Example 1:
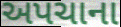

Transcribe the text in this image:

અપચાના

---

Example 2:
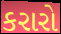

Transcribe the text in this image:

કરારો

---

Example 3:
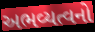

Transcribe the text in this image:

અભવ્યત્વનો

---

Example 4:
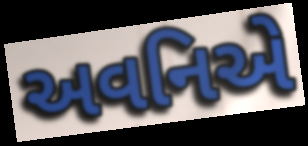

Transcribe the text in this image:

અવનિએ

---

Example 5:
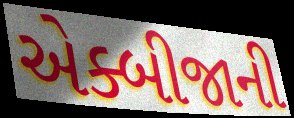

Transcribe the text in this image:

એક્બીજાની